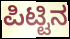
ಪಿಟ್ಟಿನ